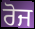
ਰੋਜ